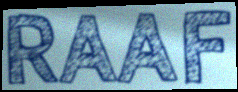
RAAF